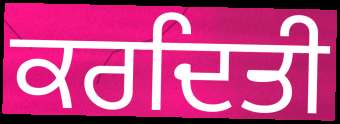
ਕਰਦਿਤੀ